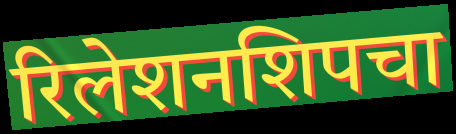
रिलेशनशिपचा